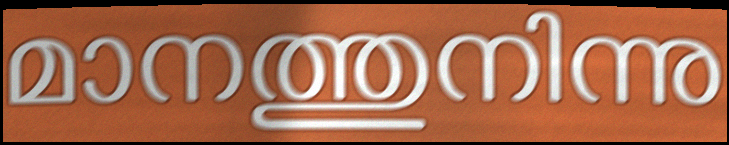
മാനത്തുനിന്നു